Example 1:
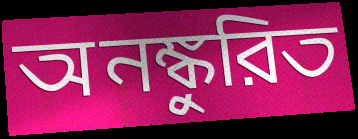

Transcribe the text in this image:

অনঙ্কুরিত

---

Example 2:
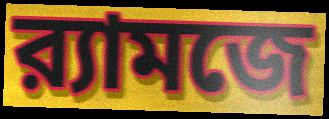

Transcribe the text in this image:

র‍্যামজে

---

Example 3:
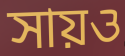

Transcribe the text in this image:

সায়ও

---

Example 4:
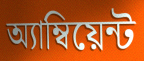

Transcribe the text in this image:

অ্যাম্বিয়েন্ট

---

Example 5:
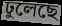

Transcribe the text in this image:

ঢুলেছে